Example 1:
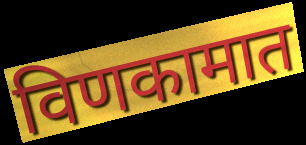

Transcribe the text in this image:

विणकामात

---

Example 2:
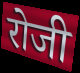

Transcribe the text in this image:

रोजी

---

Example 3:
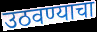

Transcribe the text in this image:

उठवण्याचा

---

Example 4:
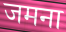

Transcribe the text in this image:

जमना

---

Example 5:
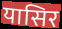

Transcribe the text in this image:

यासिर